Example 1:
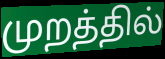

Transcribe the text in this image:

முறத்தில்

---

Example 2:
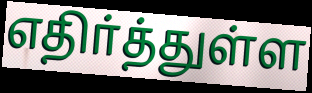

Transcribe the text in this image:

எதிர்த்துள்ள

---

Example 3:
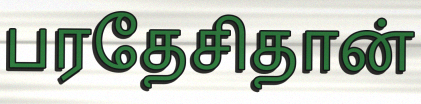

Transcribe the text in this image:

பரதேசிதான்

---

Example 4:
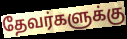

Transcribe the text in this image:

தேவர்களுக்கு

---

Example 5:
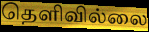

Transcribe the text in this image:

தெளிவில்லை